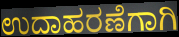
ಉದಾಹರಣೆಗಾಗಿ